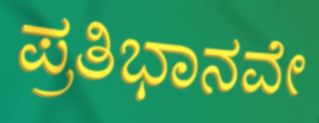
ಪ್ರತಿಭಾನವೇ